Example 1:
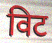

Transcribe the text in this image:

विट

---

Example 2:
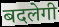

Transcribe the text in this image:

बदलेगी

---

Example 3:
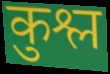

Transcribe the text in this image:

कुश्ल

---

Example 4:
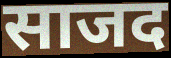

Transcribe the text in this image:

साजद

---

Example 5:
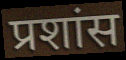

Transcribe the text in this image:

प्रशांस